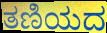
ತಣಿಯದ